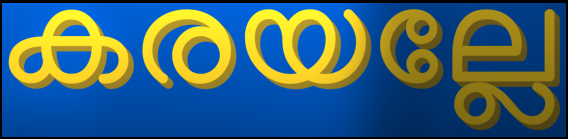
കരയല്ലേ